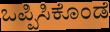
ಒಪ್ಪಿಸಿಕೊಂಡೆ